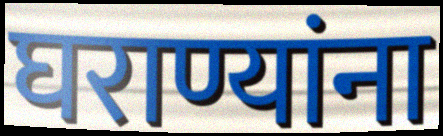
घराण्यांना